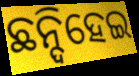
ଛନ୍ଦିହେଇ